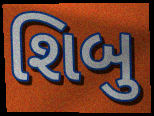
શિબુ